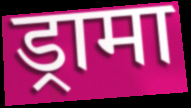
ड्रामा